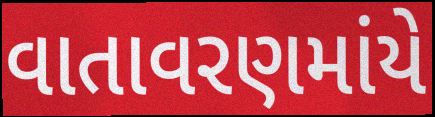
વાતાવરણમાંયે